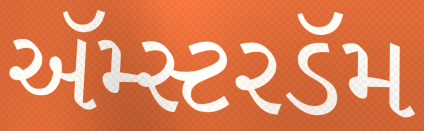
ઍમ્સ્ટરડૅમ